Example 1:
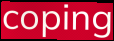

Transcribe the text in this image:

coping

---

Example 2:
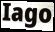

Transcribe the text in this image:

Iago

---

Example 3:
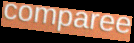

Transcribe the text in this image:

comparee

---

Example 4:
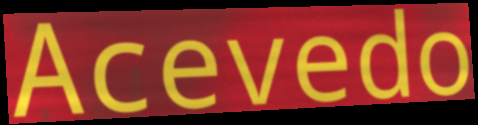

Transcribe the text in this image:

Acevedo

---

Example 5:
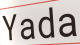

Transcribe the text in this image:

Yada